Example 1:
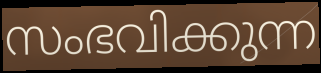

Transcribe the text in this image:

സംഭവിക്കുന്ന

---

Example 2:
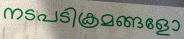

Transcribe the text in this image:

നടപടിക്രമങ്ങളോ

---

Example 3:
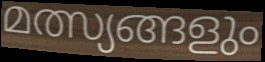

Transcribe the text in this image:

മത്സ്യങ്ങളും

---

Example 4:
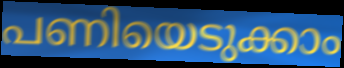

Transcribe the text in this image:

പണിയെടുക്കാം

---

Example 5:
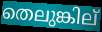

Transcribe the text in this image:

തെലുങ്കില്